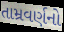
તામ્રવર્ણનો